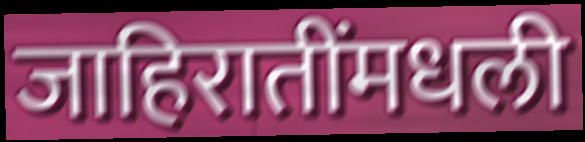
जाहिरातींमधली